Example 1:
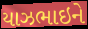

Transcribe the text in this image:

યાઝભાઇને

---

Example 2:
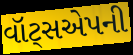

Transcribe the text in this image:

વૉટ્સએપની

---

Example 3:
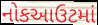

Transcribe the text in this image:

નોકઆઉટમાં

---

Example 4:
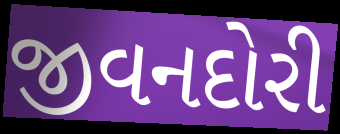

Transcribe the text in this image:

જીવનદોરી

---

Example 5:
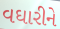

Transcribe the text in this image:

વઘારીને